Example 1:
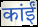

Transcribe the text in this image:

कांईं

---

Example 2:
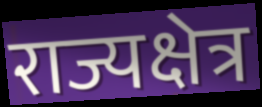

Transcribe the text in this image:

राज्यक्षेत्र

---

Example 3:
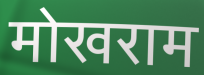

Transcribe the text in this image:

मोखराम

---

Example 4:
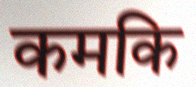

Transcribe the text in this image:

कमकि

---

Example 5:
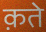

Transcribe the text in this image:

क़ते